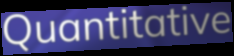
Quantitative